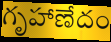
గృహాణేదం